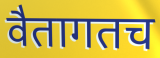
वैतागतच